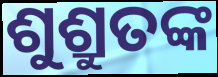
ଶୁଶ୍ରୁତଙ୍କ